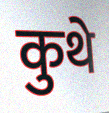
कुथे